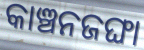
କାଞ୍ଚନଜଙ୍ଘା